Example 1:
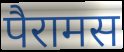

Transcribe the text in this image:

पैरामस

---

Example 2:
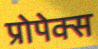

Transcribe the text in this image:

प्रोपेक्स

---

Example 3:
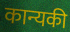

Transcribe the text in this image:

कान्यकी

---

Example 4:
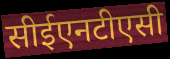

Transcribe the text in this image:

सीईएनटीएसी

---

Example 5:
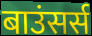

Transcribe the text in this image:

बाउंसर्स